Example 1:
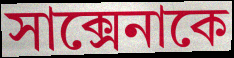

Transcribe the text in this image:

সাক্সেনাকে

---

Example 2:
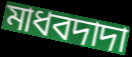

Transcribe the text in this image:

মাধবদাদা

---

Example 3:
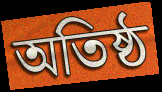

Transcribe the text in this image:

অতিষ্ঠ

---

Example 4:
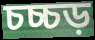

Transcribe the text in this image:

চচ্চড়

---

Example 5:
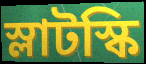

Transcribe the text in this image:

স্লাটস্কি